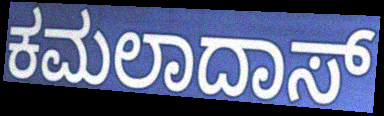
ಕಮಲಾದಾಸ್